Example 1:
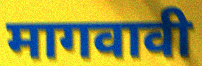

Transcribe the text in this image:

मागवावी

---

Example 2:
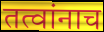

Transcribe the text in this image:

तत्वांनाच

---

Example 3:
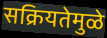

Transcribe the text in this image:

सक्रियतेमुळे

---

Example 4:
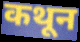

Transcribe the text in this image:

कथून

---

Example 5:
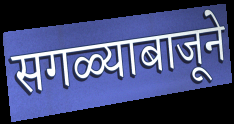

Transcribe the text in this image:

सगळ्याबाजूने